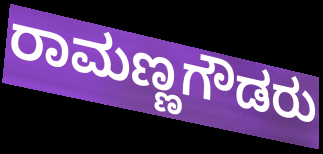
ರಾಮಣ್ಣಗೌಡರು